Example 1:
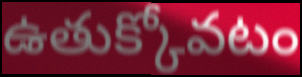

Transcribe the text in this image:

ఉతుక్కోవటం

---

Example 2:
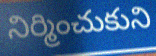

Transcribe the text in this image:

నిర్మించుకుని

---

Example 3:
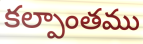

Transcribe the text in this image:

కల్పాంతము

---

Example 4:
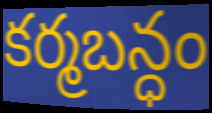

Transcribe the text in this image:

కర్మబన్ధం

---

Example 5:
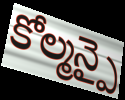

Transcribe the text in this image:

కోల్మన్పై